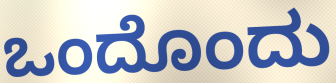
ಒಂದೊಂದು